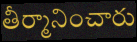
తీర్మానించారు